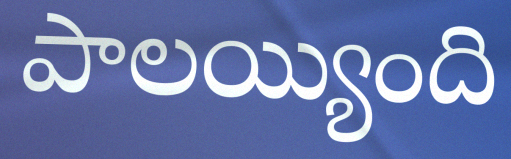
పాలయ్యింది